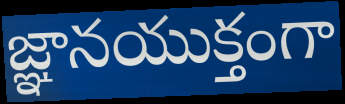
జ్ఞానయుక్తంగా